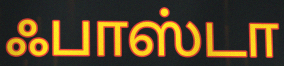
ஃபாஸ்டா